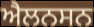
ਐਲਨਸਨ